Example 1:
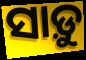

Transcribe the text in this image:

ସାଡ଼ୁ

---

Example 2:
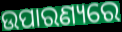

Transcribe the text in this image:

ଉପାରଣ୍ୟରେ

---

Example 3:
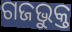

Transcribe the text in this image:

ଗଜଭୁକ୍ତ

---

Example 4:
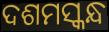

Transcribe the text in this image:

ଦଶମସ୍କନ୍ଧ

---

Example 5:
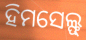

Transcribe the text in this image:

ହିମସେଲ୍ଫ୍